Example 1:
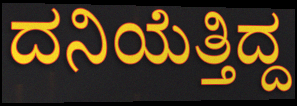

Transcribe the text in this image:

ದನಿಯೆತ್ತಿದ್ದ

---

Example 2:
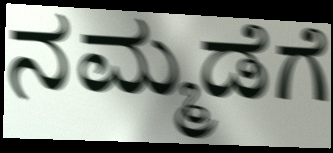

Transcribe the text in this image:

ನಮ್ಮಡೆಗೆ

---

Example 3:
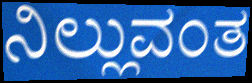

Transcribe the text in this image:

ನಿಲ್ಲುವಂತ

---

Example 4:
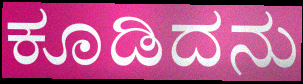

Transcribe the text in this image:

ಕೂಡಿದನು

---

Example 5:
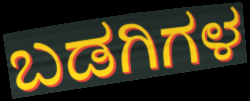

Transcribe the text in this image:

ಬಡಗಿಗಳ